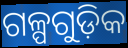
ଗଳ୍ପଗୁଡ଼ିକ